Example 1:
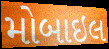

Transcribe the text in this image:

મોબાઇલ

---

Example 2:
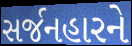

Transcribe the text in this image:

સર્જનહારને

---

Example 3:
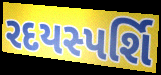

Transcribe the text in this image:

રદયસ્પર્શિ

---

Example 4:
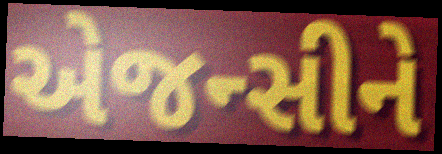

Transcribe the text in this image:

એજન્સીને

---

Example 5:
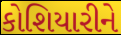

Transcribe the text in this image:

કોશિયારીને